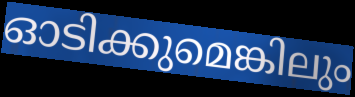
ഓടിക്കുമെങ്കിലും